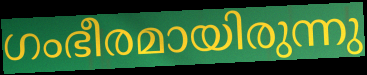
ഗംഭീരമായിരുന്നു